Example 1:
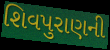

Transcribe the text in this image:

શિવપુરાણની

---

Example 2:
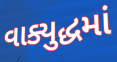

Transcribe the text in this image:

વાક્યુદ્ધમાં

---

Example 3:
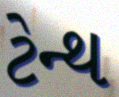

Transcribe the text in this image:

ટેન્થ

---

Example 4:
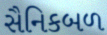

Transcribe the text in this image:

સૈનિકબળ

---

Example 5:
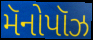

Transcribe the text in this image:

મૅનોપૉઝ